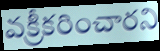
వక్రీకరించారని